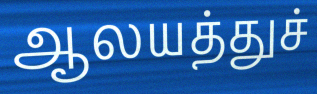
ஆலயத்துச்